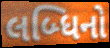
લબ્ધિનો